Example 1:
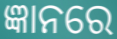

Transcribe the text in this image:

ଜ୍ଞାନରେ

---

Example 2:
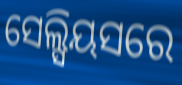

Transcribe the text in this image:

ସେଲ୍ସିୟସରେ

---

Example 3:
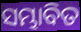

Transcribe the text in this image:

ସମ୍ଭାବିତ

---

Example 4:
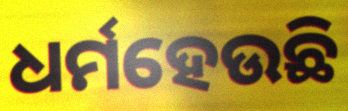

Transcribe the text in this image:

ଧର୍ମହେଉଛି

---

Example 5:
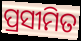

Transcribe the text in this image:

ପ୍ରସୀମିତ